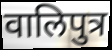
वालिपुत्र